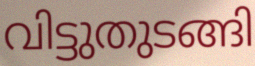
വിട്ടുതുടങ്ങി